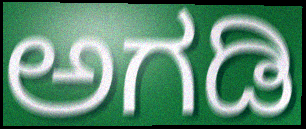
ಅಗಡಿ